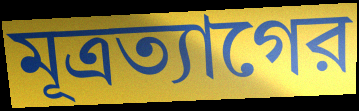
মূত্রত্যাগের